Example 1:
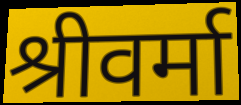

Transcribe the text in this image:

श्रीवर्मा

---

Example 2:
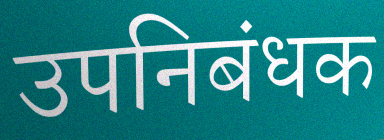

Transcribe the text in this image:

उपनिबंधक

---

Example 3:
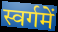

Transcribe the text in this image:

स्वर्गमें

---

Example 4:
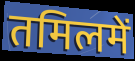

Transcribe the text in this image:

तमिलमें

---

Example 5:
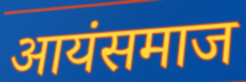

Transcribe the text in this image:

आयंसमाज